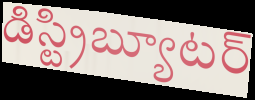
డిస్ట్రిబ్యూటర్